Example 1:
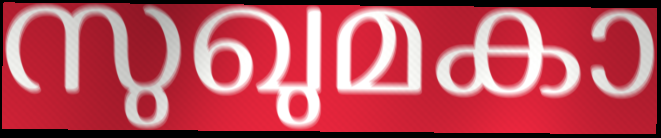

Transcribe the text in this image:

സുഖുമകാ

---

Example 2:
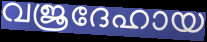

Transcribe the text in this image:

വജ്രദേഹായ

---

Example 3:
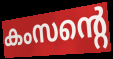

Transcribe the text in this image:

കംസന്റെ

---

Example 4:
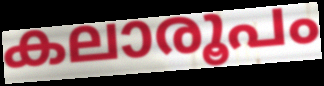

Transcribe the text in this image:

കലാരൂപം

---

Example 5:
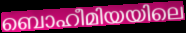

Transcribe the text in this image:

ബൊഹീമിയയിലെ